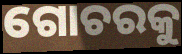
ଗୋଚରକୁ